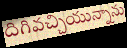
దిగివచ్చియున్నాను